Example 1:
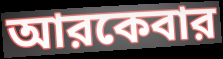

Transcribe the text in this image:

আরকেবার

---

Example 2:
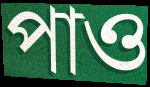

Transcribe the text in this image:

পাও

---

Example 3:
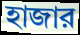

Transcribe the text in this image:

হাজার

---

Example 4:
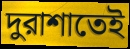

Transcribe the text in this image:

দুরাশাতেই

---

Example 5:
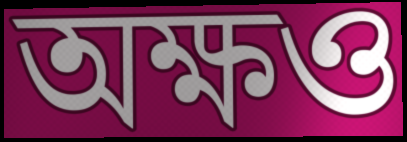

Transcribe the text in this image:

অক্ষও